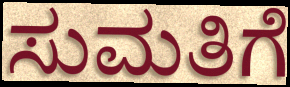
ಸುಮತಿಗೆ